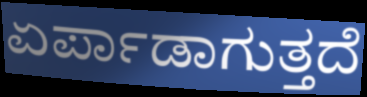
ಏರ್ಪಾಡಾಗುತ್ತದೆ